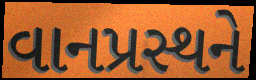
વાનપ્રસ્થને